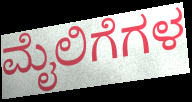
ಮೈಲಿಗೆಗಳ